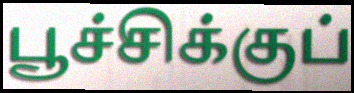
பூச்சிக்குப்